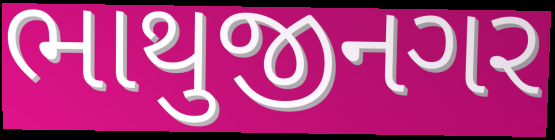
ભાથુજીનગર